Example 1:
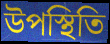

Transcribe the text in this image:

উপস্থিতি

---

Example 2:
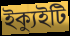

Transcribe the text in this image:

ইক্যুইটি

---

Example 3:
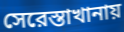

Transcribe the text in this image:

সেরেস্তাখানায়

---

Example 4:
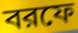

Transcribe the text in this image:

বরফে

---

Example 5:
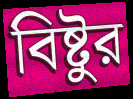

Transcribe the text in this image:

বিষ্টুর